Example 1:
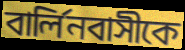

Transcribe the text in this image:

বার্লিনবাসীকে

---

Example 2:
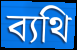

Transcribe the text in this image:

ব্যথি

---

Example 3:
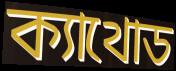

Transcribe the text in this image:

ক্যাথোড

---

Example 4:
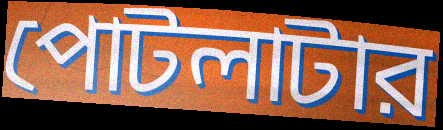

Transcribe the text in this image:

পোটলাটার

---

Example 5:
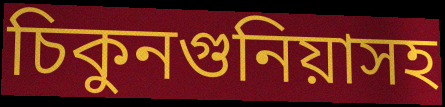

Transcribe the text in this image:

চিকুনগুনিয়াসহ